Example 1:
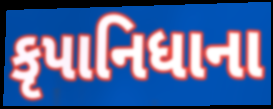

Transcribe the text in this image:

કૃપાનિધાના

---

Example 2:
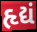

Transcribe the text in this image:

હૃદ્યં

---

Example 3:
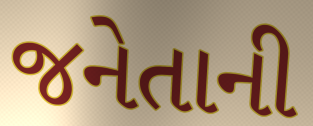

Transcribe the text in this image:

જનેતાની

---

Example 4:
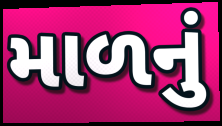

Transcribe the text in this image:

માળનું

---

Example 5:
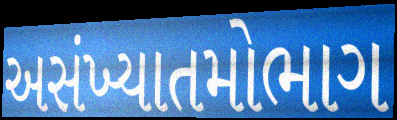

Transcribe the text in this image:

અસંખ્યાતમોભાગ